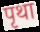
पृथा